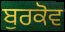
ਬੁਰਕੋਵ